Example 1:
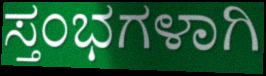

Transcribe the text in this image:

ಸ್ತಂಭಗಳಾಗಿ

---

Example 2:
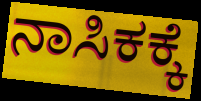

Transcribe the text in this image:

ನಾಸಿಕಕ್ಕೆ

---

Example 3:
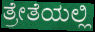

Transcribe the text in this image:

ತ್ರೇತೆಯಲ್ಲಿ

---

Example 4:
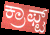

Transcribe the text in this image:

ಕ್ರಾಫ್ಟ್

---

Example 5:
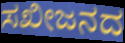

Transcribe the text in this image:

ಸಖೀಜನದ